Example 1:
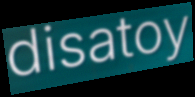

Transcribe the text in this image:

disatoy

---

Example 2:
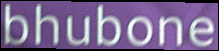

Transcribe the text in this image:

bhubone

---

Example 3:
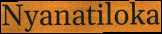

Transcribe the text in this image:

Nyanatiloka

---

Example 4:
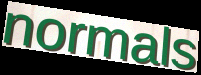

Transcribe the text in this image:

normals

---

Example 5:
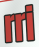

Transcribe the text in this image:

rri